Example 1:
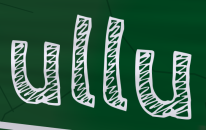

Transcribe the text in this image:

ullu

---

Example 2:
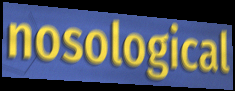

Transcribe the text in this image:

nosological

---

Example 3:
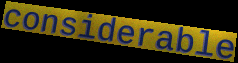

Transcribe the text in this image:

considerable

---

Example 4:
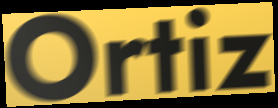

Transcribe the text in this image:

Ortiz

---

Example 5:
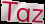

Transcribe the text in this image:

Taz